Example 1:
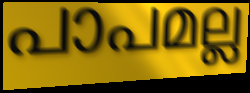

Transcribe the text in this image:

പാപമല്ല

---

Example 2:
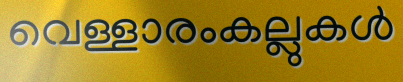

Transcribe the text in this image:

വെള്ളാരംകല്ലുകൾ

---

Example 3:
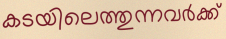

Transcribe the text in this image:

കടയിലെത്തുന്നവർക്ക്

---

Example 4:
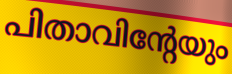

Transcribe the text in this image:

പിതാവിന്റേയും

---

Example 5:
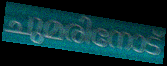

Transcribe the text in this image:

ചുമരിനോട്